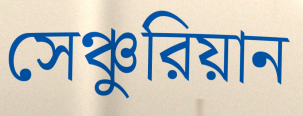
সেঞ্চুরিয়ান